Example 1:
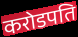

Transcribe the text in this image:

करोडपति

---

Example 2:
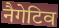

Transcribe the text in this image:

नैगेटिव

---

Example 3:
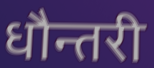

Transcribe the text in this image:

धौन्तरी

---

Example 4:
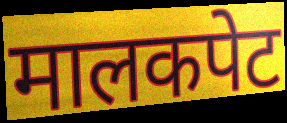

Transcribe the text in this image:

मालकपेट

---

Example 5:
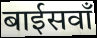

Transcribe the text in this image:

बाईसवाँ